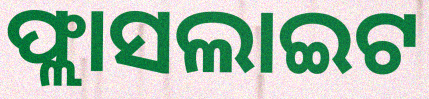
ଫ୍ଲାସଲାଇଟ